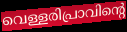
വെള്ളരിപ്രാവിന്റെ